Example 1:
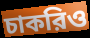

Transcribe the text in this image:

চাকরিও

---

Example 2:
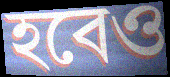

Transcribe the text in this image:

হবেও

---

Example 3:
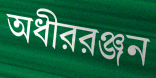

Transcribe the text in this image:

অধীররঞ্জন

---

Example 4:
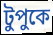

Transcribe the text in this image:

টুপুকে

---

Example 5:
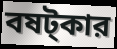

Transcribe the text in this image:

বষট্কার